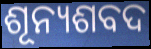
ଶୂନ୍ୟଶବଦ